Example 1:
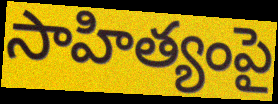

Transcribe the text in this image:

సాహిత్యంపై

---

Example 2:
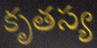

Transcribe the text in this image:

కృతస్య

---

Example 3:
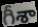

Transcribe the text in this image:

గీశా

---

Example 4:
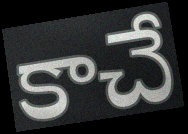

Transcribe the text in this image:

కాచే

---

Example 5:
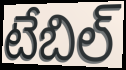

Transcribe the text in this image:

టేబిల్